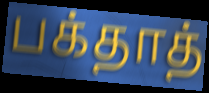
பக்தாத்